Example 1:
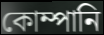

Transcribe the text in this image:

কোম্পানি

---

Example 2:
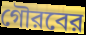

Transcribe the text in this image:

গৌরবের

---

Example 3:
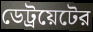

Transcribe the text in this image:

ডেট্রয়েটের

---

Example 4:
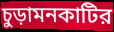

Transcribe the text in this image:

চুড়ামনকাটির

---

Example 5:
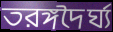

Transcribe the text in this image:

তরঙ্গদৈর্ঘ্য